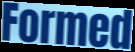
Formed